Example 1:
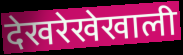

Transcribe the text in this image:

देखरेखेखाली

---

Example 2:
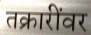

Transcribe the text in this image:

तक्रारींवर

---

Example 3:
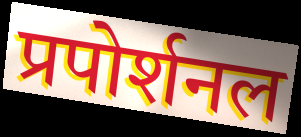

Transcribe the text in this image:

प्रपोर्शनल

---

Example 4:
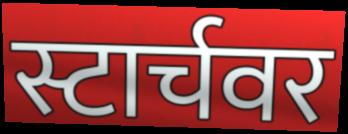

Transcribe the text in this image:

स्टार्चवर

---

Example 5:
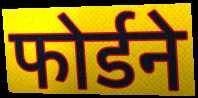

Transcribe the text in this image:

फोर्डने